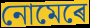
নোমেৰে